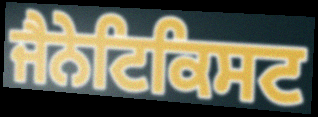
ਜੈਨੇਟਿਕਿਸਟ